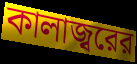
কালাজ্বরের